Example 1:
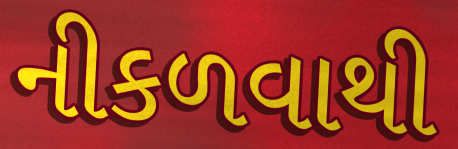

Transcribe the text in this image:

નીકળવાથી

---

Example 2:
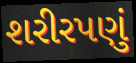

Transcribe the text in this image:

શરીરપણું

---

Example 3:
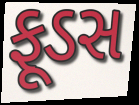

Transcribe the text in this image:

ફૂડસ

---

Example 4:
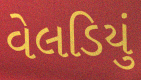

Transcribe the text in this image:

વેલડિયું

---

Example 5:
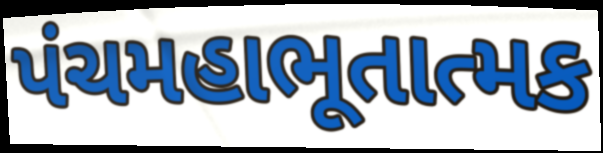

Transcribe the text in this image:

પંચમહાભૂતાત્મક